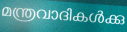
മന്ത്രവാദികൾക്കു